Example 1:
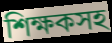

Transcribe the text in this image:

শিক্ষকসহ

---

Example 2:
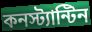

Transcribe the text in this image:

কনস্ট্যান্টিন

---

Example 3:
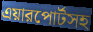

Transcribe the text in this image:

এয়ারপোর্টসহ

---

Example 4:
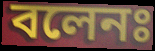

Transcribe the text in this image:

বলেনঃ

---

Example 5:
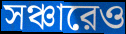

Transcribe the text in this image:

সঞ্চারেও